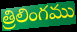
త్రిలింగము